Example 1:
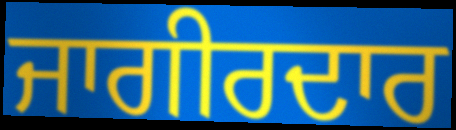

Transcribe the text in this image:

ਜਾਗੀਰਦਾਰ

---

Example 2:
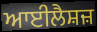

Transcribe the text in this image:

ਆਈਲੈਸ਼ਜ਼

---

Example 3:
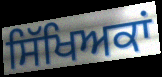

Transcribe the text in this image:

ਸਿੱਖਿਅਕਾਂ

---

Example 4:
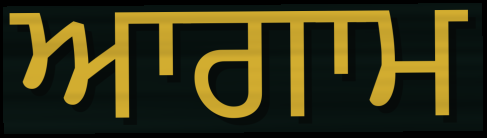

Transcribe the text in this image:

ਆਗਾਮ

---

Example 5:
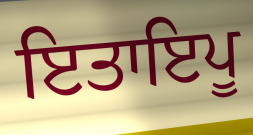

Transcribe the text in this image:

ਇਤਾਇਪੂ